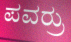
ಪವರ್ರು